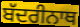
ਬੱਦਰੀਨਾਥ